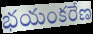
భయంకరేణ